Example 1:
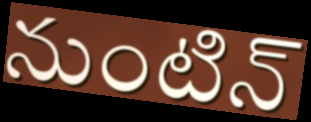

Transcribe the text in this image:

నుంటిన్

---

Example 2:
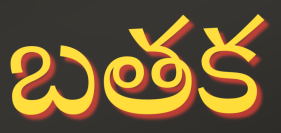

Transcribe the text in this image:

బతక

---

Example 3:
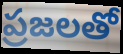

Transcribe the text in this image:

ప్రజలతో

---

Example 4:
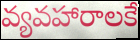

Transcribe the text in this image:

వ్యవహారాలకే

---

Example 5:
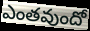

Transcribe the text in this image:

ఎంతవుందో